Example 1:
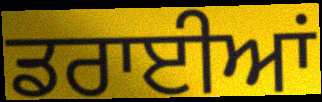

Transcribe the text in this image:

ਡਰਾਈਆਂ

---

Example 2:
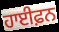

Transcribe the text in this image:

ਹਾਈਫ਼ਨ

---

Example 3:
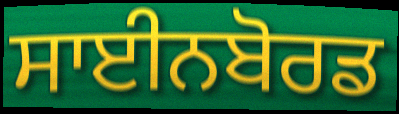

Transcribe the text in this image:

ਸਾਈਨਬੋਰਡ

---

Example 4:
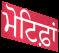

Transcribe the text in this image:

ਮੋਟਿਫ਼ਾਂ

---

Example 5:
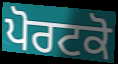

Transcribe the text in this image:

ਪੋਰਟਕੋ